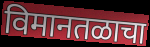
विमानतळाचा